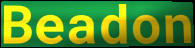
Beadon